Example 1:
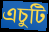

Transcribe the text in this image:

এচুটি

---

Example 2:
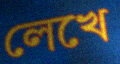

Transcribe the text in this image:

লেখে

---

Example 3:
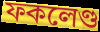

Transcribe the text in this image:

ফকলেণ্ড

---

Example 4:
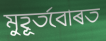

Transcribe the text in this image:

মুহূৰ্তবোৰত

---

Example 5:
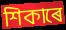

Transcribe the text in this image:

শিকাৰে